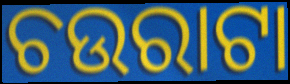
ଚଉରାଟା